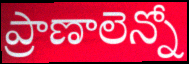
ప్రాణాలెన్నో